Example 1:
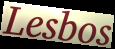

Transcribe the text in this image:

Lesbos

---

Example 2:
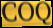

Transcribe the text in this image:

COQ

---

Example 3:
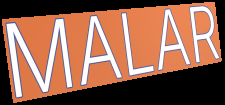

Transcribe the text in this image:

MALAR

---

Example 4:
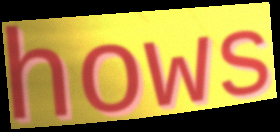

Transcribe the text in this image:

hows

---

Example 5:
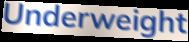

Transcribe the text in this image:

Underweight